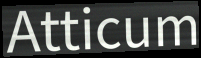
Atticum